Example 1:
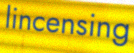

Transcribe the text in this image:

lincensing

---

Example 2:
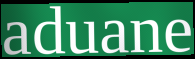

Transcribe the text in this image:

aduane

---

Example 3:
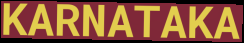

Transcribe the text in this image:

KARNATAKA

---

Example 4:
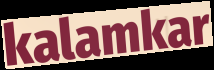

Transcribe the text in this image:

kalamkar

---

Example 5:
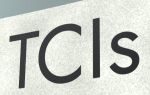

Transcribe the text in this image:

TCIs